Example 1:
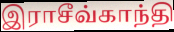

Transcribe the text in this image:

இராசீவ்காந்தி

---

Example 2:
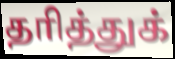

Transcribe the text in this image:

தரித்துக்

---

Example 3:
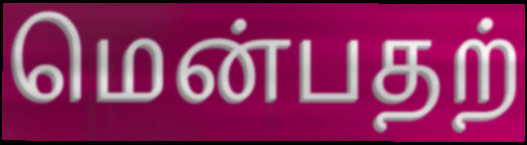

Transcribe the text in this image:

மென்பதற்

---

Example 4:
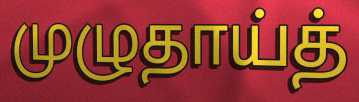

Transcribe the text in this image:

முழுதாய்த்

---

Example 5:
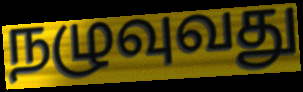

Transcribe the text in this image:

நழுவுவது